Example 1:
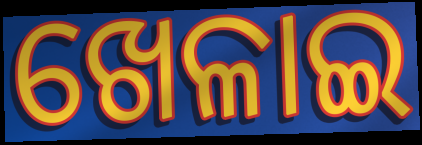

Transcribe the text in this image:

ଖେଳାଇ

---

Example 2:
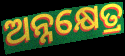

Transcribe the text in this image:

ଅନ୍ନକ୍ଷେତ୍ର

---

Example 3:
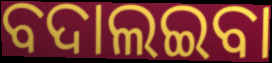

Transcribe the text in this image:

ବଦାଲଇବା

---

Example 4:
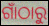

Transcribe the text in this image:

ଗାଁଠାରୁ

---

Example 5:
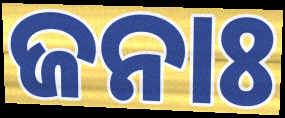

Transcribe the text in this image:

ଜନାଃ